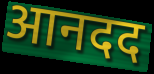
आनदद